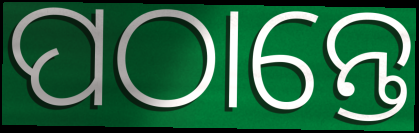
ପଠାନ୍ତେ